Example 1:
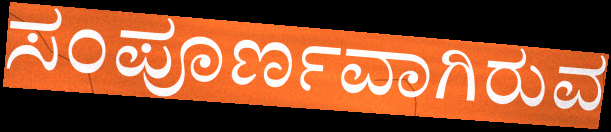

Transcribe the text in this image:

ಸಂಪೂರ್ಣವಾಗಿರುವ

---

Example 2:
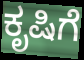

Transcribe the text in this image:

ಕೃಷಿಗೆ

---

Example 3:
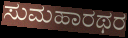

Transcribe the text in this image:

ಸುಮಹಾರಥರ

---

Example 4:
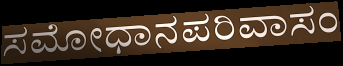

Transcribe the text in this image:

ಸಮೋಧಾನಪರಿವಾಸಂ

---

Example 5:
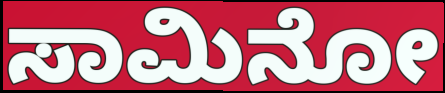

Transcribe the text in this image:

ಸಾಮಿನೋ